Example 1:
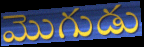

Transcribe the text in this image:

మొగుడు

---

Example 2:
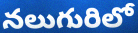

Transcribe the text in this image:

నలుగురిలో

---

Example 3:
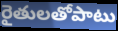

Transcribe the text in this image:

రైతులతోపాటు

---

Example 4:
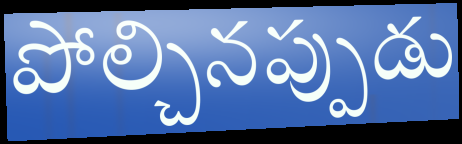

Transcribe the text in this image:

పోల్చినప్పుడు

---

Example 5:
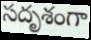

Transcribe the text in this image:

సదృశంగా